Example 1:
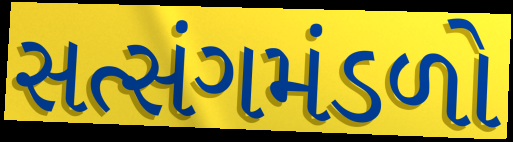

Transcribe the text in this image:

સત્સંગમંડળો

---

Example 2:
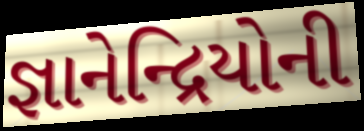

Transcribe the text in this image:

જ્ઞાનેન્દ્રિયોની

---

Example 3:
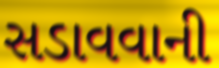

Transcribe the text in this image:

સડાવવાની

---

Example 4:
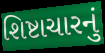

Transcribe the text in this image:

શિષ્ટાચારનું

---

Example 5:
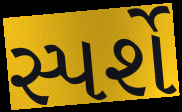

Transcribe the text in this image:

સ્પર્શે